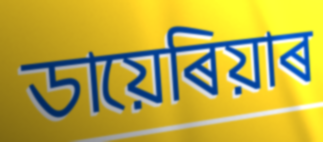
ডায়েৰিয়াৰ